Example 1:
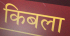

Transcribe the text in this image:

किबला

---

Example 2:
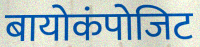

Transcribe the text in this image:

बायोकंपोजिट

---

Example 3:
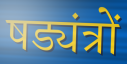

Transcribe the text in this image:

षड्यंत्रों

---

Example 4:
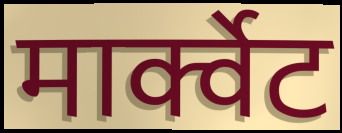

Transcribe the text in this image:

मार्क्वेट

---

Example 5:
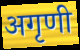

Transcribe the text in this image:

अगृणी